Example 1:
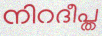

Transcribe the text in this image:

നിറദീപ്ത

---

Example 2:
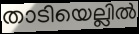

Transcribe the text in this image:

താടിയെല്ലിൽ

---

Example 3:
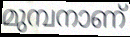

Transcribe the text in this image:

മുമ്പനാണ്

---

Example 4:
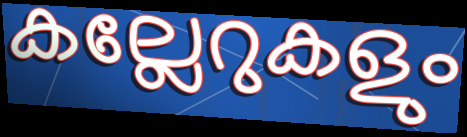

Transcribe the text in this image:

കല്ലേറുകളും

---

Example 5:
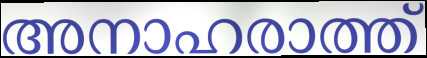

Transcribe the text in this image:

അനാഹരാത്ത്